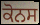
ਕੋਨਸ